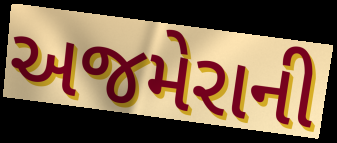
અજમેરાની